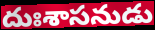
దుఃశాసనుడు